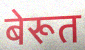
बेरूत